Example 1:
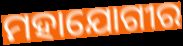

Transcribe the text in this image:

ମହାଯୋଗୀର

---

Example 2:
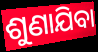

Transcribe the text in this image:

ଶୁଣାଯିବା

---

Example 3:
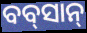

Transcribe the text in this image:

ବବ୍‌ସାନ୍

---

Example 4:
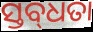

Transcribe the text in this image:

ସ୍ତବ୍‍ଧତା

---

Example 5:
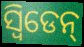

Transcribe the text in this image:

ସ୍ଵିଡେନ୍